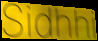
Sidhhi